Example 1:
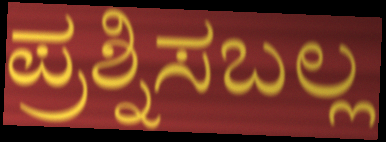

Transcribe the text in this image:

ಪ್ರಶ್ನಿಸಬಲ್ಲ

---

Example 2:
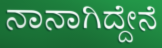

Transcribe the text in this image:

ನಾನಾಗಿದ್ದೇನೆ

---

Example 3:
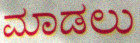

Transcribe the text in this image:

ಮಾಡಲು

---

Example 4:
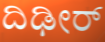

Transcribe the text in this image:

ದಿಢೀರ್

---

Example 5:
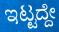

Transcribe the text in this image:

ಇಟ್ಟದ್ದೇ